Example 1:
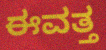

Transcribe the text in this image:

ಈವತ್ತ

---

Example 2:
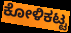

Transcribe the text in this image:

ಕೋಳಿಕಟ್ಟ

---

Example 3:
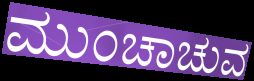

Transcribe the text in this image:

ಮುಂಚಾಚುವ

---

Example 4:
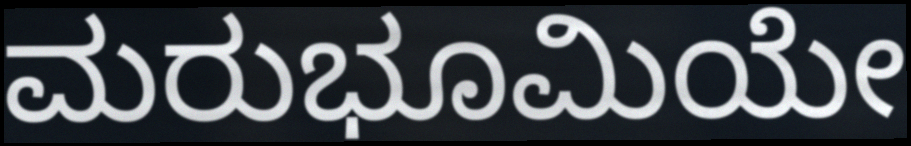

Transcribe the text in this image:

ಮರುಭೂಮಿಯೇ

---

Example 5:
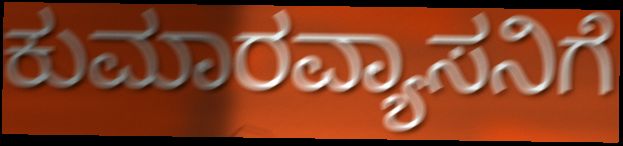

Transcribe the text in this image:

ಕುಮಾರವ್ಯಾಸನಿಗೆ